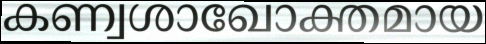
കണ്വശാഖോക്തമായ